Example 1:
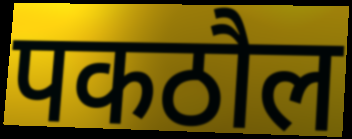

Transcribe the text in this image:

पकठौल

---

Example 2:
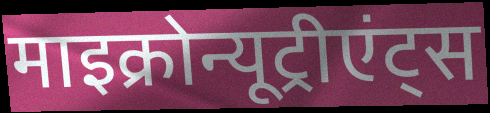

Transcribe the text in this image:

माइक्रोन्यूट्रीएंट्स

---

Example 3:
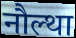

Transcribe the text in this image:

नौल्था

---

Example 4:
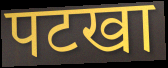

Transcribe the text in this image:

पटखा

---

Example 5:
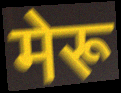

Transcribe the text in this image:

मेरू